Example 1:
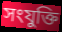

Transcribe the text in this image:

সংযুক্তি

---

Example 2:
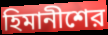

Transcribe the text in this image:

হিমানীশের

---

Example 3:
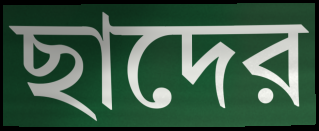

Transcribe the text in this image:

ছাদের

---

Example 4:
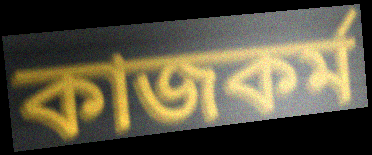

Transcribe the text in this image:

কাজকর্ম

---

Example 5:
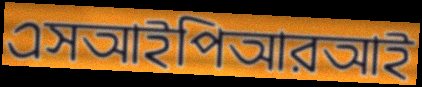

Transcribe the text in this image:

এসআইপিআরআই